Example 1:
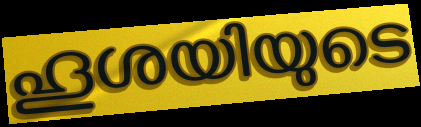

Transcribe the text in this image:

ഹൂശയിയുടെ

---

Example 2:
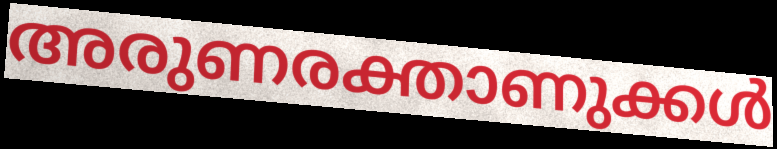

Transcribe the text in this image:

അരുണരക്താണുക്കൾ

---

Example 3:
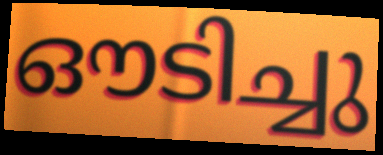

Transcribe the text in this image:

ഔടിച്ചു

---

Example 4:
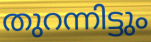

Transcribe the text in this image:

തുറന്നിട്ടും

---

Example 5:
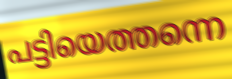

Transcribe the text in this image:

പട്ടിയെത്തന്നെ